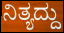
ನಿತ್ಯದ್ದು